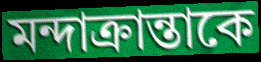
মন্দাক্রান্তাকে